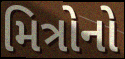
મિત્રોનો